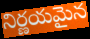
నిర్ణయమైన